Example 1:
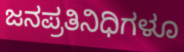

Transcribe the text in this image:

ಜನಪ್ರತಿನಿಧಿಗಳೂ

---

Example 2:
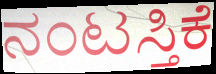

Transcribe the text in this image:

ನಂಟಸ್ತಿಕೆ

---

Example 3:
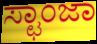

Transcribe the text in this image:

ಸ್ಟಾಂಜಾ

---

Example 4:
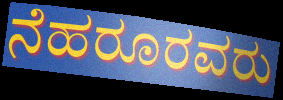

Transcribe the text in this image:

ನೆಹರೂರವರು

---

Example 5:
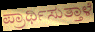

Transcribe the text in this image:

ಪ್ರಾರ್ಥಿಸುತ್ತಾಳೆ